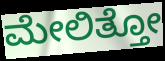
ಮೇಲಿತ್ತೋ